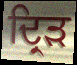
ਦ੍ਰਿਡ਼